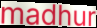
madhur